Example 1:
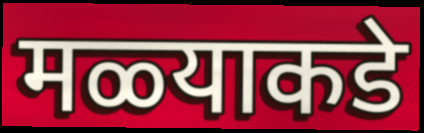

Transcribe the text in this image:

मळ्याकडे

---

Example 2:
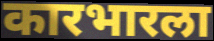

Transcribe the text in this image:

कारभारला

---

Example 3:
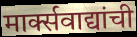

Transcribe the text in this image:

मार्क्सवाद्यांची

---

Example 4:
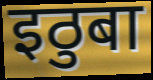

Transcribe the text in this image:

इठुबा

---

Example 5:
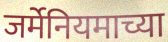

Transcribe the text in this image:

जर्मेनियमाच्या